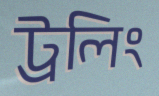
ট্রলিং